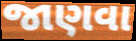
જાણવા